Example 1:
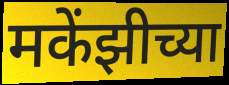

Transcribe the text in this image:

मकेंझीच्या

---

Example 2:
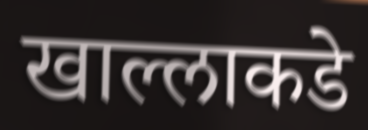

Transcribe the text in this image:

खाल्लाकडे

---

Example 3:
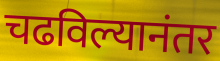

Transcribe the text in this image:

चढविल्यानंतर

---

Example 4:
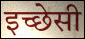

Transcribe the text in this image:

इच्छेसी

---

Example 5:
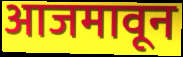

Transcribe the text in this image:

आजमावून